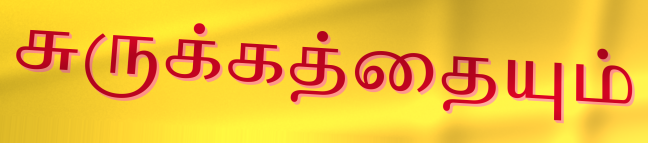
சுருக்கத்தையும்